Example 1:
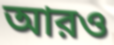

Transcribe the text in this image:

আরও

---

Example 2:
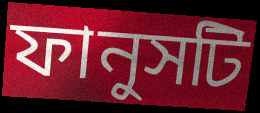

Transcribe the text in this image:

ফানুসটি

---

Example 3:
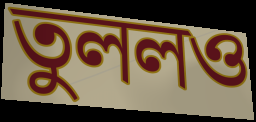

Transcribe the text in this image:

তুললও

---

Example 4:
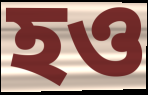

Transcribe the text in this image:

হও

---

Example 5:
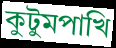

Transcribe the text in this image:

কুটুমপাখি